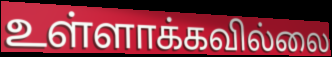
உள்ளாக்கவில்லை